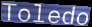
Toledo